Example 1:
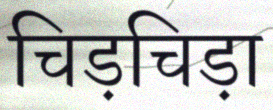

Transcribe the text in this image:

चिड़चिड़ा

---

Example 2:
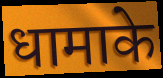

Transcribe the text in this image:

धामाके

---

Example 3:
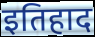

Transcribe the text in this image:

इतिहाद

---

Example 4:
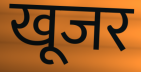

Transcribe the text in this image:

खूजर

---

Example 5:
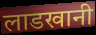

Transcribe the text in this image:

लाडखानी